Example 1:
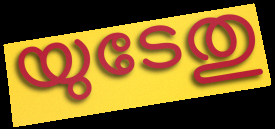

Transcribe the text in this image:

യുടേതു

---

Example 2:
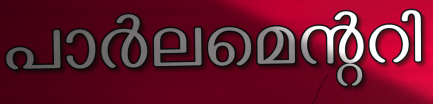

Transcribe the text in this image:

പാർലമെന്ററി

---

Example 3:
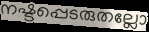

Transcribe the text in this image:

നഷ്ടപ്പെടരുതല്ലോ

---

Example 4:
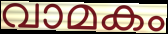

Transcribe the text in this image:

വാമകം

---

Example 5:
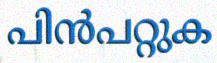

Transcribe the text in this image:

പിൻപറ്റുക